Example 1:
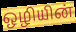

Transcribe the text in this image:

ஒழியின்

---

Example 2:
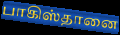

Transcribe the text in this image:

பாகிஸ்தானை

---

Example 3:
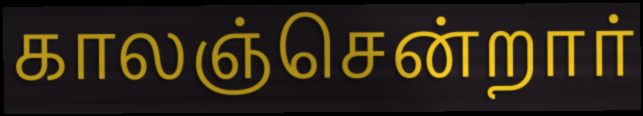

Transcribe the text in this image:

காலஞ்சென்றார்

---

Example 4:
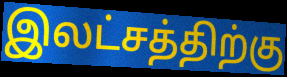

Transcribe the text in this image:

இலட்சத்திற்கு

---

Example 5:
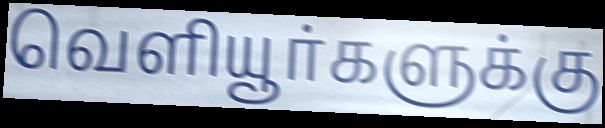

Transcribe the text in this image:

வெளியூர்களுக்கு